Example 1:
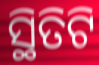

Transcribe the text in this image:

ସ୍ଥିତିଟି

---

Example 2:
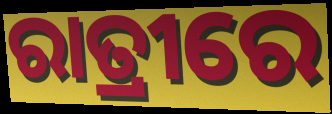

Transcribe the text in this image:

ରାତ୍ରୀରେ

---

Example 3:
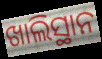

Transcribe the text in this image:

ଖାଲିସ୍ଥାନ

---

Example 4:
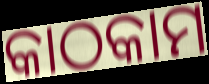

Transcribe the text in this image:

କାଠକାମ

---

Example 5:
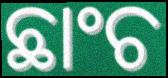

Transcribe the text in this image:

ଛାଂଚ